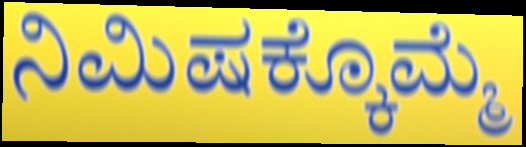
ನಿಮಿಷಕ್ಕೊಮ್ಮೆ